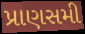
પ્રાણસમી